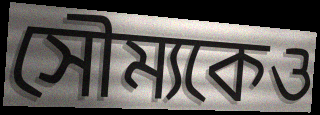
সৌম্যকেও